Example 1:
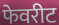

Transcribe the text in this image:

फेवरीट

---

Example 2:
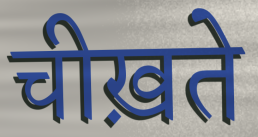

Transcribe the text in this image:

चीख़ते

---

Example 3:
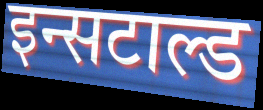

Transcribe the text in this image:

इन्सटाल्ड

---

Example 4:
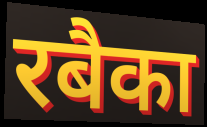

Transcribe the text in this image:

रबैका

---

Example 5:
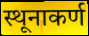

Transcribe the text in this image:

स्थूनाकर्ण